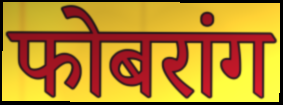
फोबरांग